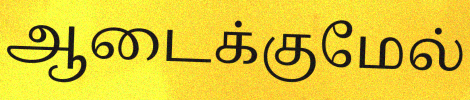
ஆடைக்குமேல்